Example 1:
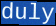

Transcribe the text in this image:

duly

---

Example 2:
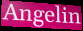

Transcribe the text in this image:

Angelin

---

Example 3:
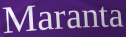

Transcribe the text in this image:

Maranta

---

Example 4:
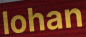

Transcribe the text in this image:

lohan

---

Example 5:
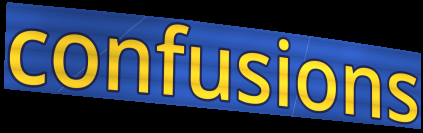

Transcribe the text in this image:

confusions